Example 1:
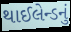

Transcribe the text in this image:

થાઈલેન્ડનું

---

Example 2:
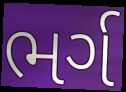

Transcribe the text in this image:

ભર્ગ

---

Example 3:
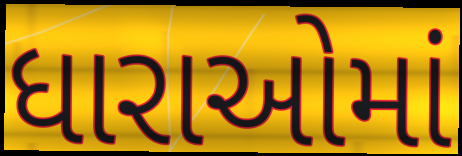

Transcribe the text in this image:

ધારાઓમાં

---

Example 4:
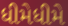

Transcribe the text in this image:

ધીમેધીમે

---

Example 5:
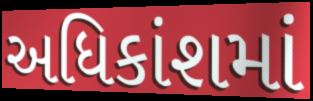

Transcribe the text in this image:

અધિકાંશમાં